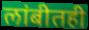
लांबीतही